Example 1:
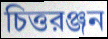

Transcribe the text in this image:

চিত্তরঞ্জন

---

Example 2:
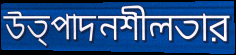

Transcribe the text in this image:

উত্পাদনশীলতার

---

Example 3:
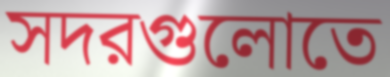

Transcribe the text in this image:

সদরগুলোতে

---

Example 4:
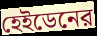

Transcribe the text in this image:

হেইডেনের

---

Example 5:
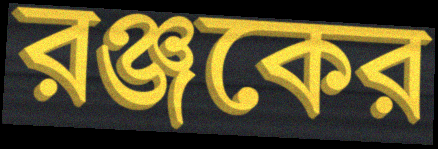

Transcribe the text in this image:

রঞ্জকের